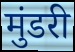
मुंडरी